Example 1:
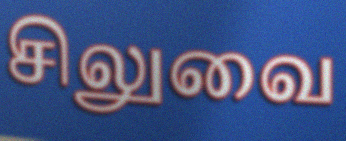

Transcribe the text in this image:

சிலுவை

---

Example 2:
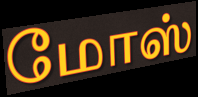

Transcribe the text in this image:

மோஸ்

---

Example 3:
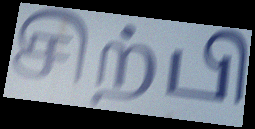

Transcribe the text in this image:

சிற்பி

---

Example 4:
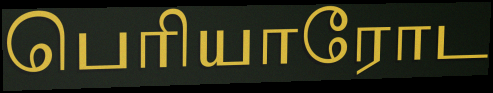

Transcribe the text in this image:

பெரியாரோட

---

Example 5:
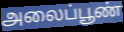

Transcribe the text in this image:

அலைப்பூண்